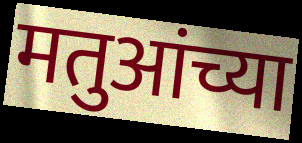
मतुआंच्या